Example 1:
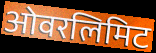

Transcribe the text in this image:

ओवरलिमिट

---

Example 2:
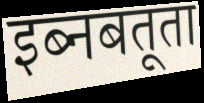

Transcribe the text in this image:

इब्नबतूता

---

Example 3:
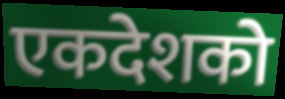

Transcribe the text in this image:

एकदेशको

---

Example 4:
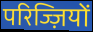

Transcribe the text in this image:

परिज्ज़ियों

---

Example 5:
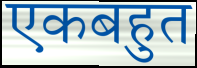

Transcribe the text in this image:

एकबहुत